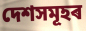
দেশসমূহৰ